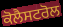
ਕੋਲੈਸਟਰੋਲ